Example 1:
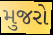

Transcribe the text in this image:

મુજરો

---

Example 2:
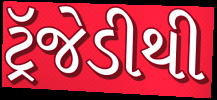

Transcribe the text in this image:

ટ્રૅજેડીથી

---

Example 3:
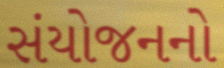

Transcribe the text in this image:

સંયોજનનો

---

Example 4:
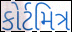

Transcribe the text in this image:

કોર્ટમિત્ર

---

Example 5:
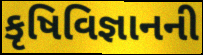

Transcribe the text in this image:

કૃષિવિજ્ઞાનની